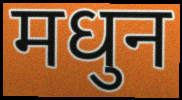
मधुन